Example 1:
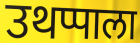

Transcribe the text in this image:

उथप्पाला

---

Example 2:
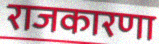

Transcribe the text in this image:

राजकारणा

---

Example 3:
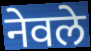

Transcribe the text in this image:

नेवले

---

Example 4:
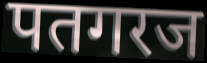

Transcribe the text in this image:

पतगरज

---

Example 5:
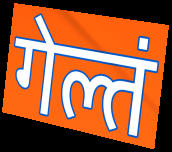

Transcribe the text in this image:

गेल्तं